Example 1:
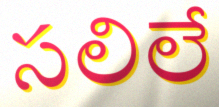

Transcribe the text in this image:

సలిలే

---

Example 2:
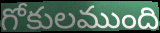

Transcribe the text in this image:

గోకులముంది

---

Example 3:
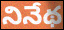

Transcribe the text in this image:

నినేథ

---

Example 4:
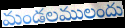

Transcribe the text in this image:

మండలములందు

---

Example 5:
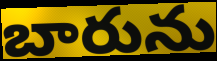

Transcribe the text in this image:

బారును